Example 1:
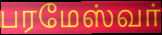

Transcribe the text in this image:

பரமேஸ்வர்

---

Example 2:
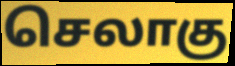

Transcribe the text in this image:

செலாகு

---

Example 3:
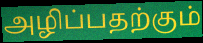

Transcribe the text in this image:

அழிப்பதற்கும்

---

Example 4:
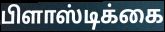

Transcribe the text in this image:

பிளாஸ்டிக்கை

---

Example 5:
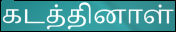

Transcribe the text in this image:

கடத்தினாள்